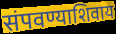
संपवण्याशिवाय